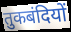
तुकबंदियों